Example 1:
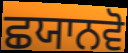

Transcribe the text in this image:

ਛਯਾਨਵੋ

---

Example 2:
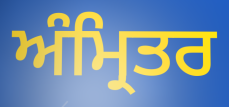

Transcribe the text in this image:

ਅੰਮ੍ਰਿਤਰ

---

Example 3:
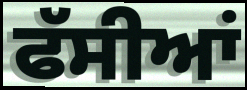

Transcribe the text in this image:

ਫੱਸੀਆਂ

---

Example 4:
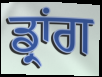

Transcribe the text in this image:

ਡ੍ਰਾਂਗ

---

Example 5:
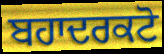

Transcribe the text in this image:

ਬਹਾਦਰਕਟੋ